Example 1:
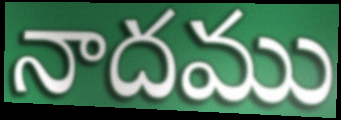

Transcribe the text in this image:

నాదము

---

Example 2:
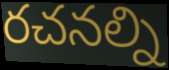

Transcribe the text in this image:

రచనల్ని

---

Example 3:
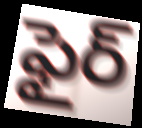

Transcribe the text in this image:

ఫైర్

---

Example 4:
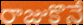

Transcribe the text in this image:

రాజుకొనే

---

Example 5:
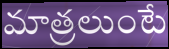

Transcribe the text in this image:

మాత్రలుంటే